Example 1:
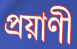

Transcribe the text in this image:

প্রয়াণী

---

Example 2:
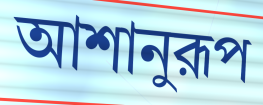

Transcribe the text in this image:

আশানুরূপ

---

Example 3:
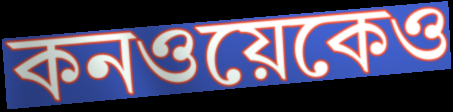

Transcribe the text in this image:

কনওয়েকেও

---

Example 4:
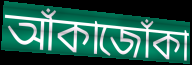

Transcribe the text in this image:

আঁকাজোঁকা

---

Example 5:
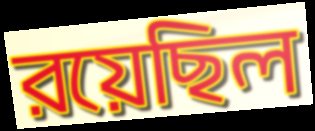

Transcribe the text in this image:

রয়েছিল